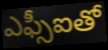
ఎఫ్సీఐతో